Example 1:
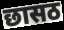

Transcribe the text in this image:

छासठ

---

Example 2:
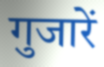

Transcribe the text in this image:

गुजारें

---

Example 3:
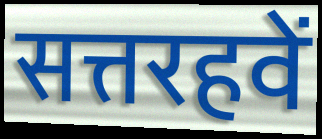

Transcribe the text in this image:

सत्तरहवें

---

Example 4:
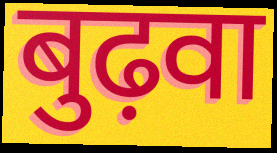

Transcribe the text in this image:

बुढ़वा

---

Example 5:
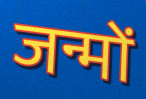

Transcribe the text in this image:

जन्मों